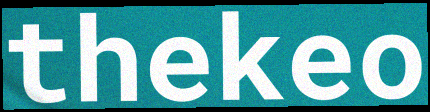
thekeo